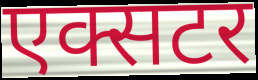
एक्सटर